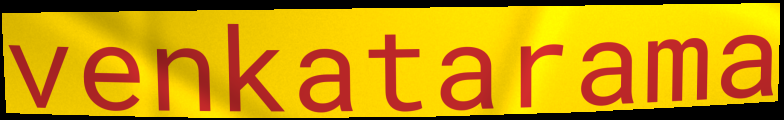
venkatarama